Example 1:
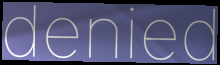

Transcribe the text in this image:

denied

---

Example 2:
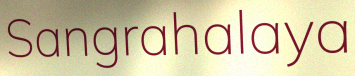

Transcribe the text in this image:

Sangrahalaya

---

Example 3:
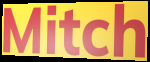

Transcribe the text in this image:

Mitch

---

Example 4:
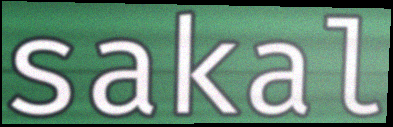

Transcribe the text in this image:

sakal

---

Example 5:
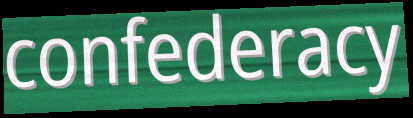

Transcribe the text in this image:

confederacy